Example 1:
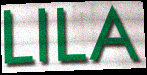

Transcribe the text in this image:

LILA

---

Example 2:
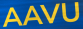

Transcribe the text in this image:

AAVU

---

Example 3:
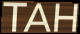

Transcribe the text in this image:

TAH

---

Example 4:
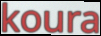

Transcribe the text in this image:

koura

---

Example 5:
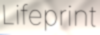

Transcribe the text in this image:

Lifeprint